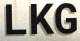
LKG